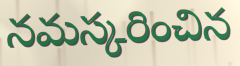
నమస్కరించిన